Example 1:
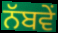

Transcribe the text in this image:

ਨੱਬਵੇਂ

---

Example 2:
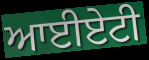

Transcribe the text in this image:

ਆਈਏਟੀ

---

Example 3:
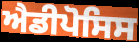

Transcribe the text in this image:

ਐਡੀਪੋਸਿਸ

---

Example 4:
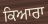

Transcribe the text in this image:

ਕਿਆਰਾ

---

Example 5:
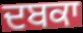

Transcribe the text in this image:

ਦਬਕਾ